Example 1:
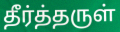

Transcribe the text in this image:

தீர்த்தருள்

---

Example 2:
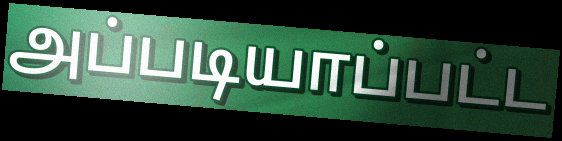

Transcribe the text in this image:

அப்படியாப்பட்ட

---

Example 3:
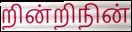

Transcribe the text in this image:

றின்றிநின்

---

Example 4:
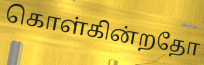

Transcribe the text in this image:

கொள்கின்றதோ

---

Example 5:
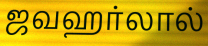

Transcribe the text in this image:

ஜவஹர்லால்